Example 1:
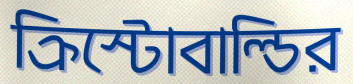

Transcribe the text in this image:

ক্রিস্টোবাল্ডির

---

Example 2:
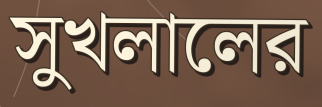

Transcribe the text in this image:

সুখলালের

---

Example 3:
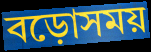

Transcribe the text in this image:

বড়োসময়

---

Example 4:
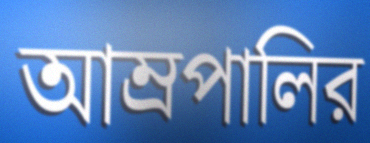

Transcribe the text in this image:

আম্রপালির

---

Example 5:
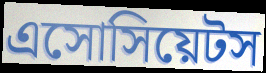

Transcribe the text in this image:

এসোসিয়েটস